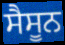
ਸੈਸੂਨ